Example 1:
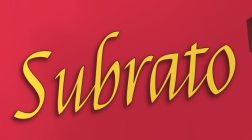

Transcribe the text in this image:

Subrato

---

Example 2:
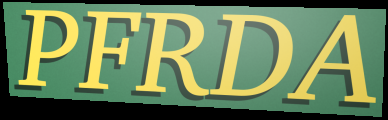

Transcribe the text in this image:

PFRDA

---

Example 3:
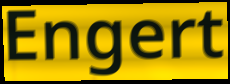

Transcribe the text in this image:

Engert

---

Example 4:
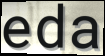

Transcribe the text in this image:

eda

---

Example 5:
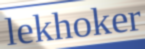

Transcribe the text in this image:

lekhoker